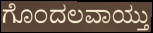
ಗೊಂದಲವಾಯ್ತು